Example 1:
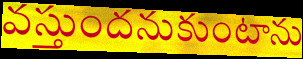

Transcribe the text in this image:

వస్తుందనుకుంటాను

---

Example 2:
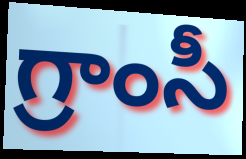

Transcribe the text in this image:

గ్రాంసీ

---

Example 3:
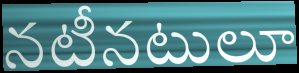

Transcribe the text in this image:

నటీనటులూ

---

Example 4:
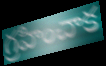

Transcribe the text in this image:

గ్రహించాక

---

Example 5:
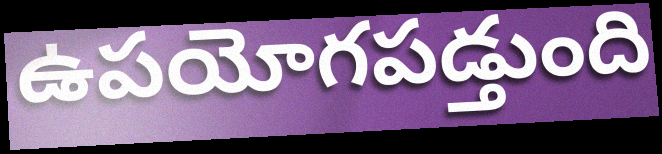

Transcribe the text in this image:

ఉపయోగపడ్తుంది